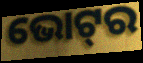
ଭୋଟ୍‍ର